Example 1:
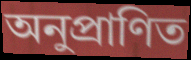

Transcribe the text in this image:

অনুপ্ৰাণিত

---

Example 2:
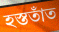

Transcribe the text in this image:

হস্ততাঁত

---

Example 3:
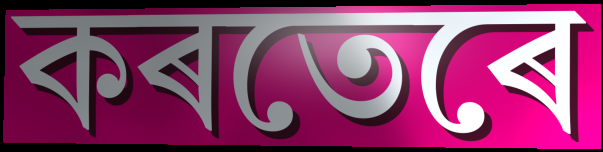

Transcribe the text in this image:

কৰতেৰে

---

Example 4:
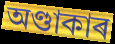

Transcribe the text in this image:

অণ্ডাকাৰ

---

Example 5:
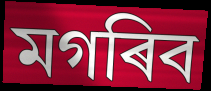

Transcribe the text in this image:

মগৰিব